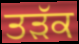
ਤੜੱਕ